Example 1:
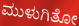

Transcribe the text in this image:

ಮುಳುಗಿತೋ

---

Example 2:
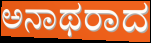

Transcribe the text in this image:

ಅನಾಥರಾದ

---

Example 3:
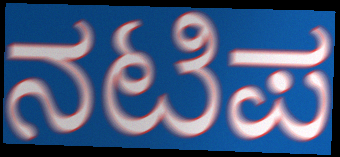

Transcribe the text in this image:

ನಟಿಪ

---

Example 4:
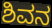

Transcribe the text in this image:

ಶಿವನ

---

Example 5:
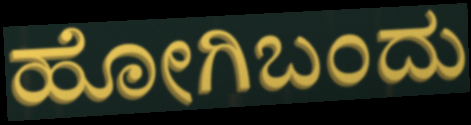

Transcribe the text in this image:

ಹೋಗಿಬಂದು